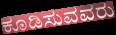
ಕೂಡಿಸುವವರು